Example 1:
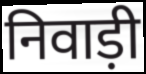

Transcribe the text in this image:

निवाड़ी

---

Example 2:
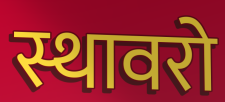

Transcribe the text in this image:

स्थावरो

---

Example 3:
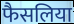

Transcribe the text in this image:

फैसलिया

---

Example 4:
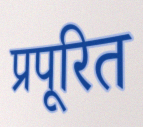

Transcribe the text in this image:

प्रपूरित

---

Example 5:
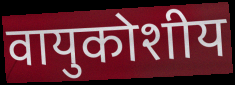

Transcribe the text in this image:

वायुकोशीय